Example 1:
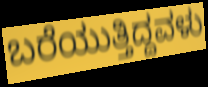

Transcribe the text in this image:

ಬರೆಯುತ್ತಿದ್ದವಳು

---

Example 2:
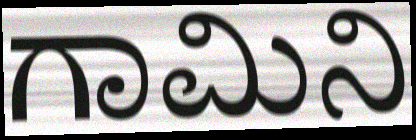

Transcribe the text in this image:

ಗಾಮಿನಿ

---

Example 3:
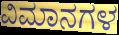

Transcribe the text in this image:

ವಿಮಾನಗಳ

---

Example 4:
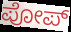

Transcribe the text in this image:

ಪೋಪ್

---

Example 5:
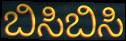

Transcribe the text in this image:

ಬಿಸಿಬಿಸಿ